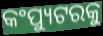
କଂପ୍ୟୁଟରକୁ